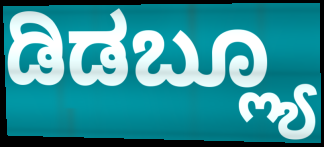
ಡಿಡಬ್ಲ್ಯೂ